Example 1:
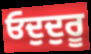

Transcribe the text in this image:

ਓਦੁਦੁਰੂ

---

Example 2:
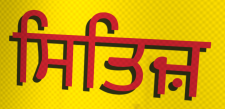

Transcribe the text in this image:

ਸਿਤਿਜ਼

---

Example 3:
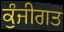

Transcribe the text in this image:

ਕੁੰਜੀਗਤ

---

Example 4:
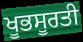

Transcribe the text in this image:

ਖੂਭਸੂਰਤੀ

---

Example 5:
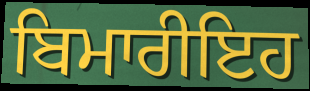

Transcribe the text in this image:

ਬਿਮਾਰੀਇਹ